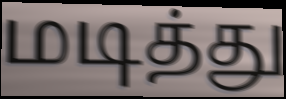
மடித்து